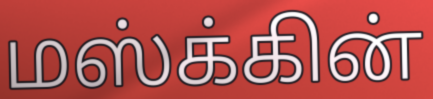
மஸ்க்கின்